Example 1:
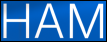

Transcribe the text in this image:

HAM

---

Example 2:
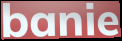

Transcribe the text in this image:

banie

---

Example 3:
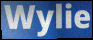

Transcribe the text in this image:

Wylie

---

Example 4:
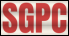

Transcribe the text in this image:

SGPC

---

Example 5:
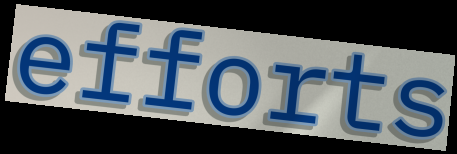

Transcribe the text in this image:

efforts